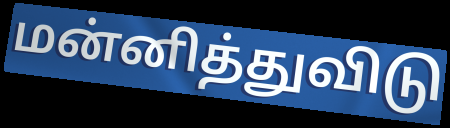
மன்னித்துவிடு